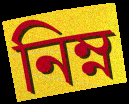
নিম্ন